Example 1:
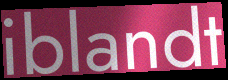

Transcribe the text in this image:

iblandt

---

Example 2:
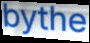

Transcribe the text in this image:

bythe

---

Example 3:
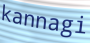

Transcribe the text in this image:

kannagi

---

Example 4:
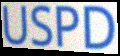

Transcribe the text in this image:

USPD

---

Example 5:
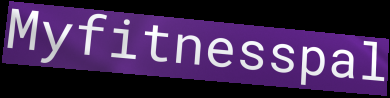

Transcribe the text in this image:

Myfitnesspal